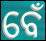
ବେଁ